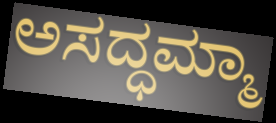
ಅಸದ್ಧಮ್ಮಾ